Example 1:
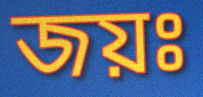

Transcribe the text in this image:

জয়ঃ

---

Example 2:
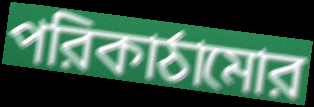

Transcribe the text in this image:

পরিকাঠামোর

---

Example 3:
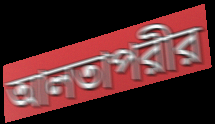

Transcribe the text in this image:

আলতাপরীর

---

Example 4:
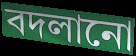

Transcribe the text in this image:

বদলানো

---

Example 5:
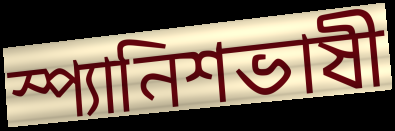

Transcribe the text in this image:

স্প্যানিশভাষী